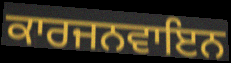
ਕਾਰਜਨਵਾਇਨ